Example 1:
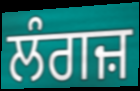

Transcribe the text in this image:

ਲੰਗਜ਼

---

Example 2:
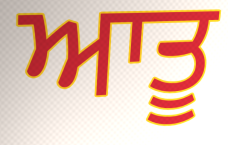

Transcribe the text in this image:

ਆਤੂ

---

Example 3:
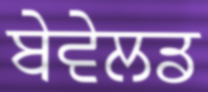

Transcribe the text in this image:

ਬੇਵੇਲਡ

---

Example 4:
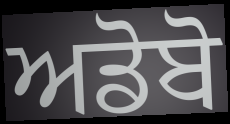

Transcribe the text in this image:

ਅਡੋਬੋ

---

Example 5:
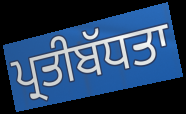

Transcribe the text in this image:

ਪ੍ਰਤੀਬੱਧਤਾ